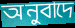
অনুবাদে